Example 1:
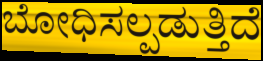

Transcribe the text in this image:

ಬೋಧಿಸಲ್ಪಡುತ್ತಿದೆ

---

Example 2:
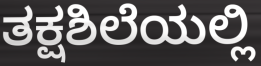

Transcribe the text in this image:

ತಕ್ಷಶಿಲೆಯಲ್ಲಿ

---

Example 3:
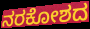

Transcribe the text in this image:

ನರಕೋಶದ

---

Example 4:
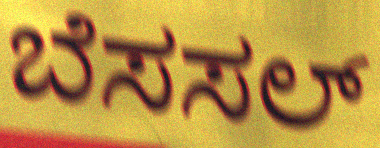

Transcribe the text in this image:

ಬೆಸಸಲ್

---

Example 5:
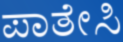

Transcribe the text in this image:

ಪಾತೇಸಿ